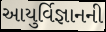
આયુર્વિજ્ઞાનની